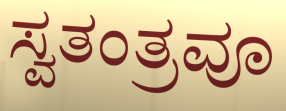
ಸ್ವತಂತ್ರವೂ